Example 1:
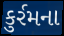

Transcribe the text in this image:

કુર્રમના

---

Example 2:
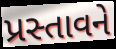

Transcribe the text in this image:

પ્રસ્તાવને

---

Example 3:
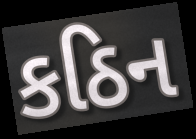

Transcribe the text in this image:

કઠિન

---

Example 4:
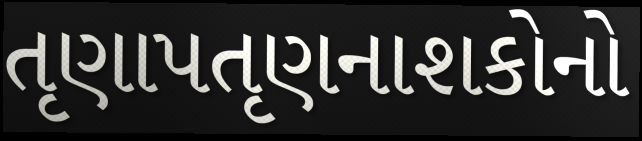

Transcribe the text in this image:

તૃણાપતૃણનાશકોનો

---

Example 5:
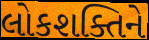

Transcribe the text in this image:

લોકશક્તિને